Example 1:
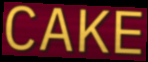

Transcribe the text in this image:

CAKE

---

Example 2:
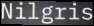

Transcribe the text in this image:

Nilgris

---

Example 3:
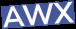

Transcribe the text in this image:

AWX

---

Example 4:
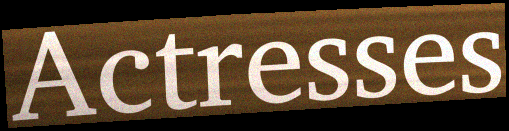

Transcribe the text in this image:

Actresses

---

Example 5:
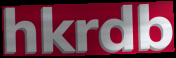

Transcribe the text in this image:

hkrdb